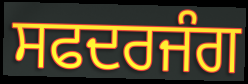
ਸਫਦਰਜੰਗ